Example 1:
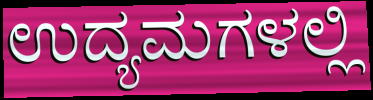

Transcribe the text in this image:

ಉದ್ಯಮಗಳಲ್ಲಿ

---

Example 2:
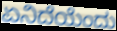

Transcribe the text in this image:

ಏನಿದೆಯೆಂದು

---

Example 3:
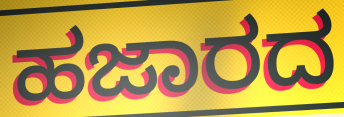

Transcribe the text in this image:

ಹಜಾರದ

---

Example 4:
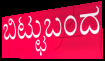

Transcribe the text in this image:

ಬಿಟ್ಟುಬಂದ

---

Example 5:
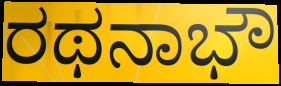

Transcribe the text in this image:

ರಥನಾಭೌ